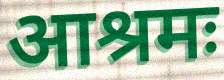
आश्रमः